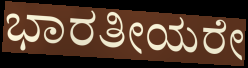
ಭಾರತೀಯರೇ